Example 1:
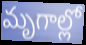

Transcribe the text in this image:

మృగాల్లో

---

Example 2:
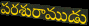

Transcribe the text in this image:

పరశురాముడు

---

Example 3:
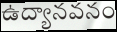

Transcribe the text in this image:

ఉద్యానవనం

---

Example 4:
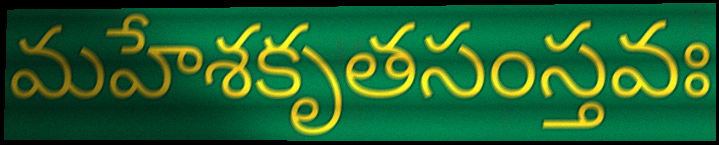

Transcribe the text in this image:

మహేశకృతసంస్తవః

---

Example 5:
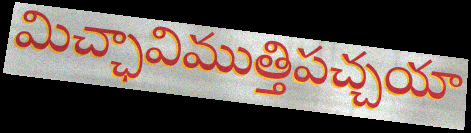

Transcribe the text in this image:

మిచ్ఛావిముత్తిపచ్చయా